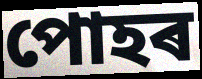
পোহৰ